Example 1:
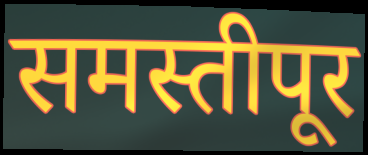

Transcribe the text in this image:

समस्तीपूर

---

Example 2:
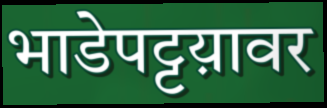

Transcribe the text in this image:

भाडेपट्टय़ावर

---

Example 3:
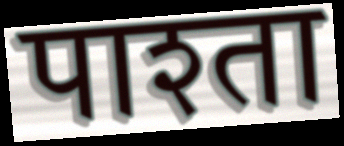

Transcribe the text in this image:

पाश्ता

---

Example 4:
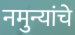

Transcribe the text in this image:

नमुन्यांचे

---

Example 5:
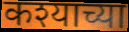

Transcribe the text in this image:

कश्याच्या